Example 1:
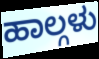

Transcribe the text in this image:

ಹಾಲ್ಗಳು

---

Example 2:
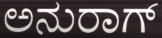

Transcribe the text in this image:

ಅನುರಾಗ್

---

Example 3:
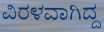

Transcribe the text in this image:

ವಿರಳವಾಗಿದ್ದ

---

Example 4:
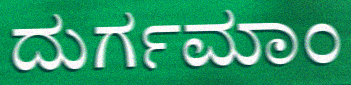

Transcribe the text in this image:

ದುರ್ಗಮಾಂ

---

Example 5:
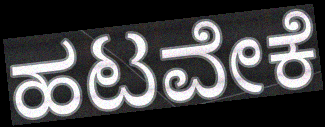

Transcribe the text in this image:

ಹಟವೇಕೆ